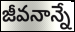
జీవనాన్నే